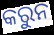
କରୁନ